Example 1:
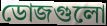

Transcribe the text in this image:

ডোজগুলো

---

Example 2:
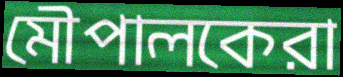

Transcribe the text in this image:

মৌপালকেরা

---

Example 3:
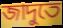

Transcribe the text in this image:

জাদুতে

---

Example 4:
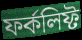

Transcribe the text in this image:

ফর্কলিফ্ট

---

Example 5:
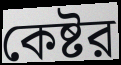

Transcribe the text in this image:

কেষ্টর